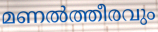
മണൽത്തീരവും